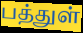
பத்துள்